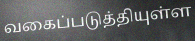
வகைப்படுத்தியுள்ள